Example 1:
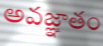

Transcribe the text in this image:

అవజ్ఞాతం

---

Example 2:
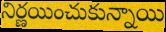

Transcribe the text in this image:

నిర్ణయించుకున్నాయి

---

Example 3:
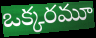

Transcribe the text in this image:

ఒక్కరమూ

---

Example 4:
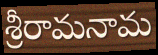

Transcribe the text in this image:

శ్రీరామనామ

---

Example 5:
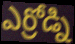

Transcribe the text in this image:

ఎర్రోడ్ని